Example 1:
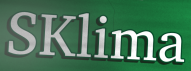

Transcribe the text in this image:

SKlima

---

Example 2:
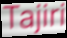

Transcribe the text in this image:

Tajiri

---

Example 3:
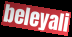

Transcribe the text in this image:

beleyali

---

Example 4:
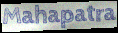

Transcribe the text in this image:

Mahapatra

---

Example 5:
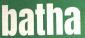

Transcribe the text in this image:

batha